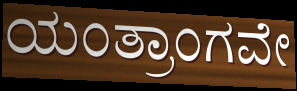
ಯಂತ್ರಾಂಗವೇ